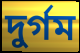
দুৰ্গম